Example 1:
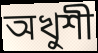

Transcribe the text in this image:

অখুশী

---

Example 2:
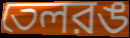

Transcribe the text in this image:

তেলরঙ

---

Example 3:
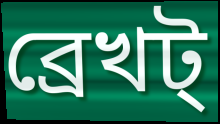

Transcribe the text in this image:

ব্রেখট্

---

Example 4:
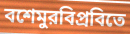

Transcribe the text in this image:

বশেমুরবিপ্রবিতে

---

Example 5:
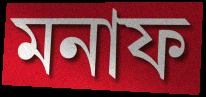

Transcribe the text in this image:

মনাফ